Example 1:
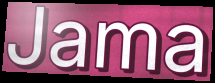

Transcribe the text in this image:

Jama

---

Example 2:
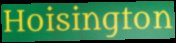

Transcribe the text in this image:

Hoisington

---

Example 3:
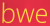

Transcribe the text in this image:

bwe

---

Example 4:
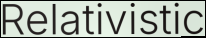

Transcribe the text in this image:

Relativistic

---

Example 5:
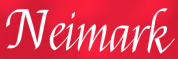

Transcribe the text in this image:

Neimark